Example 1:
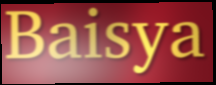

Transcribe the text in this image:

Baisya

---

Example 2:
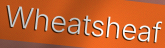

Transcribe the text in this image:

Wheatsheaf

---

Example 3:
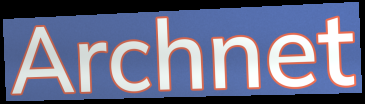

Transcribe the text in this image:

Archnet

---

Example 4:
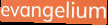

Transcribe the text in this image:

evangelium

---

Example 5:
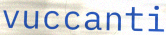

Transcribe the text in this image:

vuccanti